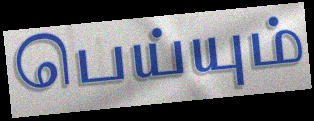
பெய்யும்